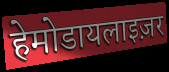
हेमोडायलाइज़र